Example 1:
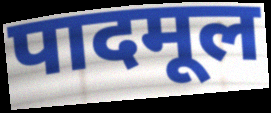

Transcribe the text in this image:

पादमूल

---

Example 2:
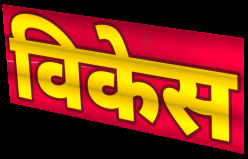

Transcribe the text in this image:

विकेस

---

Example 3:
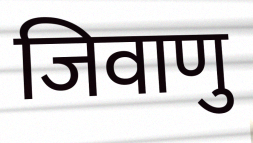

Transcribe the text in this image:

जिवाणु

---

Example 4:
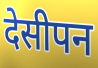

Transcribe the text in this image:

देसीपन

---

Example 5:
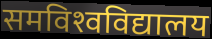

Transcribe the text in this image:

समविश्वविद्यालय